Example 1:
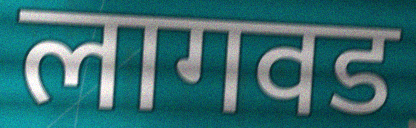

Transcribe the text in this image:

लागवड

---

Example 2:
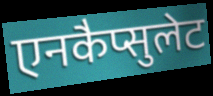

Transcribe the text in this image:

एनकैप्सुलेट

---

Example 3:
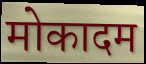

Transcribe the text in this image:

मोकादम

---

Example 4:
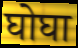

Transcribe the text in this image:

घोघा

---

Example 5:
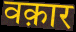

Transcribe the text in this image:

वक़ार